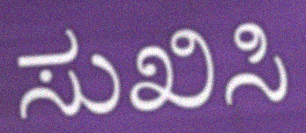
ಸುಖಿಸಿ